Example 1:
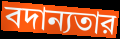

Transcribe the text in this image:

বদান্যতার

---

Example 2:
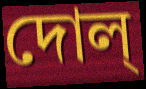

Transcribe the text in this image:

দোল্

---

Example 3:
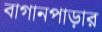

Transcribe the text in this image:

বাগানপাড়ার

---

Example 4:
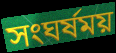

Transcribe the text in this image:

সংঘর্ষময়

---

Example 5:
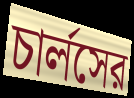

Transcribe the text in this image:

চার্লসের